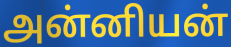
அன்னியன்